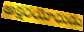
అక్షరయోధుడు